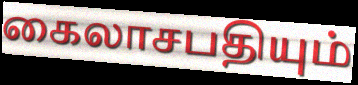
கைலாசபதியும்